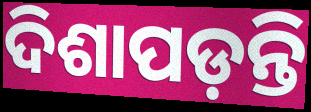
ଦିଶାପଡ଼ନ୍ତି